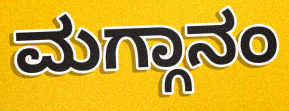
ಮಗ್ಗಾನಂ